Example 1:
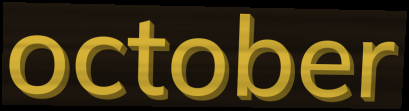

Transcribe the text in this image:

october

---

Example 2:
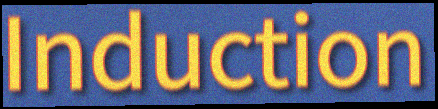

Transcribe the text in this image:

Induction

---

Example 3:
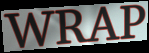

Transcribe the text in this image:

WRAP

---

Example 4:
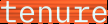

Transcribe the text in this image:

tenure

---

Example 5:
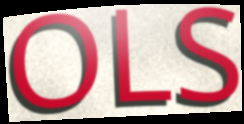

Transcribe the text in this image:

OLS